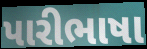
પારીભાષા